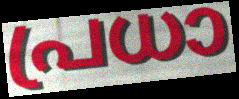
പ്രധാ